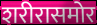
शरीरासमोर